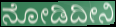
ನೋಡಿದೀನಿ